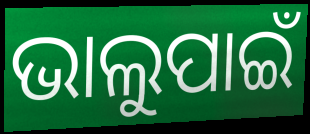
ଭାଲୁପାଇଁ